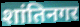
शांतिनगर